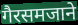
गैरसमजाने